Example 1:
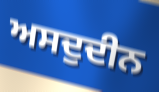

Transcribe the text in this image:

ਅਸਦੁਦੀਨ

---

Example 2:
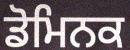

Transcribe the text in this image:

ਡੋਮਿਨਕ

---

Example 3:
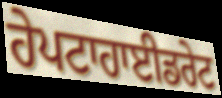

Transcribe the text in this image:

ਹੇਪਟਾਹਾਈਡਰੇਟ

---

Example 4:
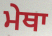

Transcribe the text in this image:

ਮੇਥਾ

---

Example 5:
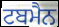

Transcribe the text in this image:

ਟਬਮੈਨ